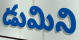
డుమిని